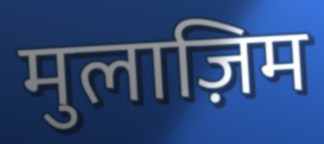
मुलाज़िम